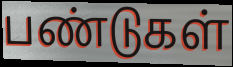
பண்டுகள்